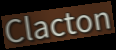
Clacton